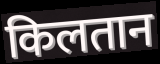
किलतान